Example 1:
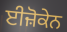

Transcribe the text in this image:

ਈਜ਼ੋਕੇਨ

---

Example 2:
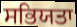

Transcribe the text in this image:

ਸਭਿਯਤਾ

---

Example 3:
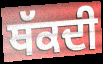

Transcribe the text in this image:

ਥੱਕਦੀ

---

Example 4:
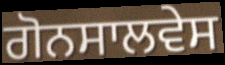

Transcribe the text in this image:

ਗੋਨਸਾਲਵੇਸ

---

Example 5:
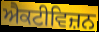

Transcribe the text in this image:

ਐਕਟੀਵਿਜ਼ਨ